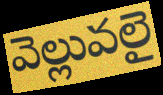
వెల్లువలై